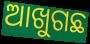
ଆଖୁଗଛ